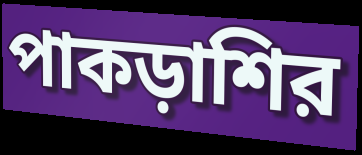
পাকড়াশির